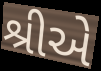
શ્રીએ